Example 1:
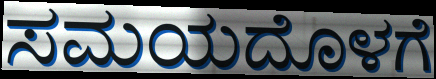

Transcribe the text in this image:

ಸಮಯದೊಳಗೆ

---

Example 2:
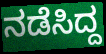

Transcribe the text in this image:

ನಡೆಸಿದ್ದ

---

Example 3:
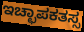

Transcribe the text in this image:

ಇಚ್ಛಾಪಕತಸ್ಸ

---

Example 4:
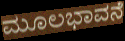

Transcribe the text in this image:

ಮೂಲಭಾವನೆ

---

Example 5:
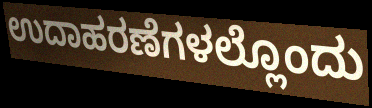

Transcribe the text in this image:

ಉದಾಹರಣೆಗಳಲ್ಲೊಂದು